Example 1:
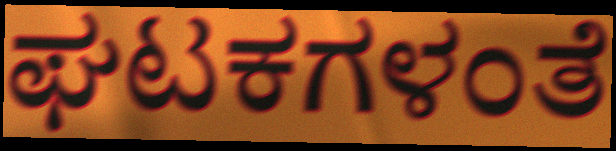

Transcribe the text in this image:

ಘಟಕಗಳಂತೆ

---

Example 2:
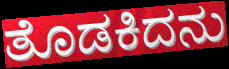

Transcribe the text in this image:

ತೊಡಕಿದನು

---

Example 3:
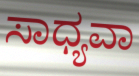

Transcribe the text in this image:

ಸಾಧ್ಯವಾ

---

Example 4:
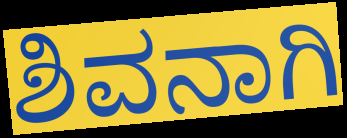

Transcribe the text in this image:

ಶಿವನಾಗಿ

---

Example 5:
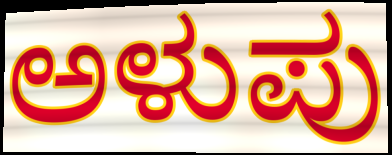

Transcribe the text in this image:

ಅಳುಪು